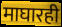
माघारही